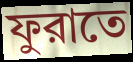
ফুরাতে